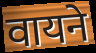
वायने